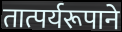
तात्पर्यरूपाने